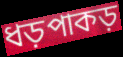
ধড়পাকড়